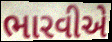
ભારવીએ